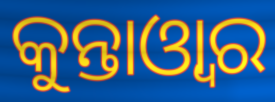
କୁନ୍ତାଓ୍ୱାର